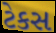
ટેકસ